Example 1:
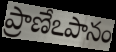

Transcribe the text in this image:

ప్రాణేఽపానం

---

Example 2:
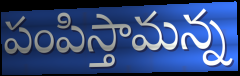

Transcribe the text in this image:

పంపిస్తామన్న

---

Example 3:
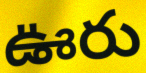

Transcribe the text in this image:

ఊరు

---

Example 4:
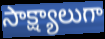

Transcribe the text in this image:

సాక్ష్యాలుగా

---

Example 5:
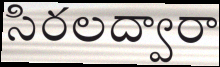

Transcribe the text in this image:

సిరలద్వారా